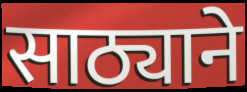
साठ्याने